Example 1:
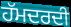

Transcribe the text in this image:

ਹੱਮਦਰਦੀ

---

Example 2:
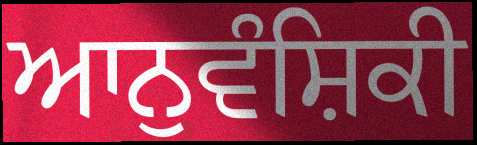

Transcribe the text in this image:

ਆਨੁਵੰਸ਼ਿਕੀ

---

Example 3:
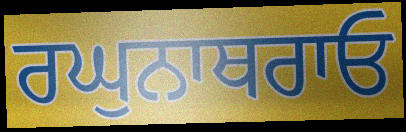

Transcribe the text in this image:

ਰਘੁਨਾਥਰਾਓ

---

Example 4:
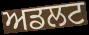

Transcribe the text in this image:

ਅਡਲਟ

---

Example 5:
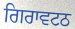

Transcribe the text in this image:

ਗਿਰਾਵਟਠ